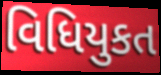
વિધિયુકત